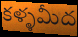
కళ్ళమీద